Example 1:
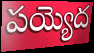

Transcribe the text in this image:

పయ్యెద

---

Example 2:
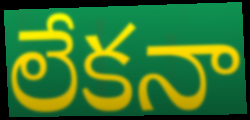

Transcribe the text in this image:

లేకనా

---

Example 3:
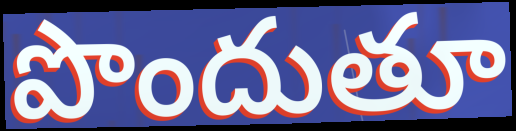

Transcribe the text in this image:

పొందుతూ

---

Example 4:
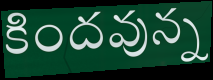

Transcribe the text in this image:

కిందవున్న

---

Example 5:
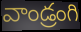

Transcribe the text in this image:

వాండ్రంగి